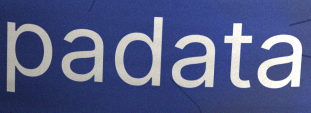
padata